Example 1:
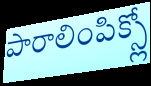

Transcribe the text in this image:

పారాలింపిక్స్లో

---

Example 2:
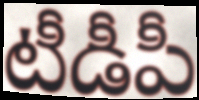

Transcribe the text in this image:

టీడీపీ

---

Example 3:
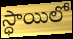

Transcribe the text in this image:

స్ధాయిలో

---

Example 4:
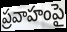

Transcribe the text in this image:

ప్రవాహంపై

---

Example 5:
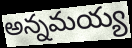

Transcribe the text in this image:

అన్నమయ్య